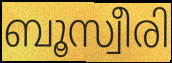
ബൂസ്വീരി